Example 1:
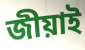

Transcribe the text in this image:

জীয়াই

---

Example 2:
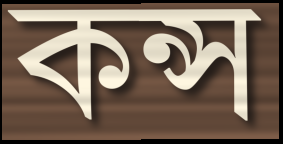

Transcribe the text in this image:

কন্স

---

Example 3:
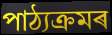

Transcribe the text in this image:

পাঠ্যক্ৰমৰ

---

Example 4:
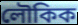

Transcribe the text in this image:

লৌকিক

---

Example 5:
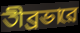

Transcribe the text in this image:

তীব্ৰভাৱে